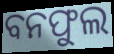
ବନଫୁଲ